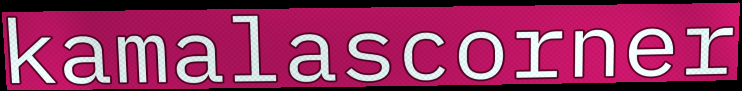
kamalascorner